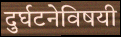
दुर्घटनेविषयी